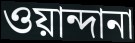
ওয়ান্দানা